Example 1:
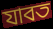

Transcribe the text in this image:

যাবত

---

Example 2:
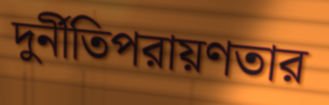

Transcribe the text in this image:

দুর্নীতিপরায়ণতার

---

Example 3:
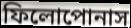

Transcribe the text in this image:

ফিলোপোনাস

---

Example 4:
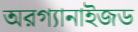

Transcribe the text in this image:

অরগ্যানাইজড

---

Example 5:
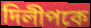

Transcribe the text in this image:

দিলীপকে